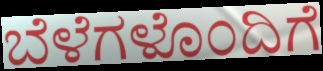
ಬೆಳೆಗಳೊಂದಿಗೆ